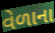
વેળાના